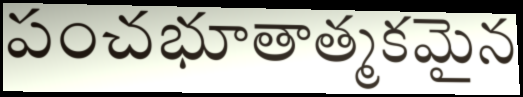
పంచభూతాత్మకమైన